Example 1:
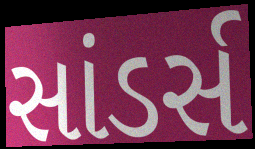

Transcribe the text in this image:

સાંડર્સ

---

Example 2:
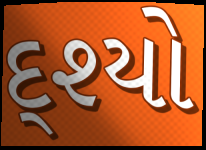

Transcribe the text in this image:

દ્શ્યો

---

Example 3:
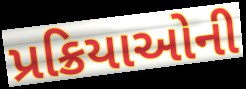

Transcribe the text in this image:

પ્રક્રિયાઓની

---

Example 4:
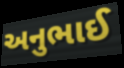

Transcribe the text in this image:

અનુભાઈ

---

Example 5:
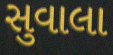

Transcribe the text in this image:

સુવાલા